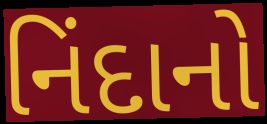
નિંદાનો